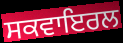
ਸਕਵਾਇਰਲ